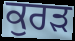
ਕੁਰੜ